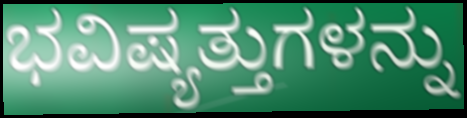
ಭವಿಷ್ಯತ್ತುಗಳನ್ನು